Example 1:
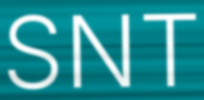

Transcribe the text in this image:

SNT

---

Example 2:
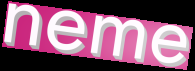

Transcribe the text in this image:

neme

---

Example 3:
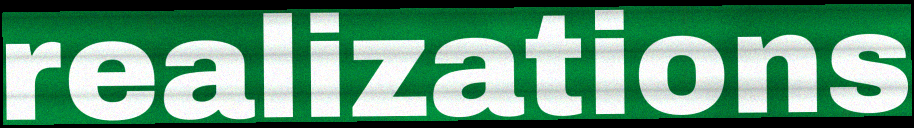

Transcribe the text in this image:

realizations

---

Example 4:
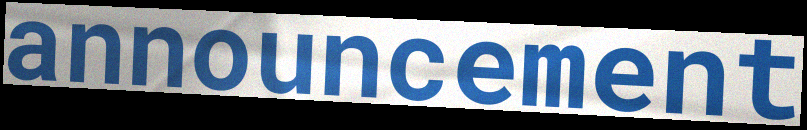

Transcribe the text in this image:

announcement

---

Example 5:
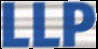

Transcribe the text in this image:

LLP